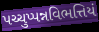
પચ્ચુપ્પન્નવિભત્તિયં